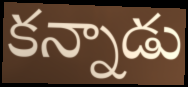
కన్నాడు